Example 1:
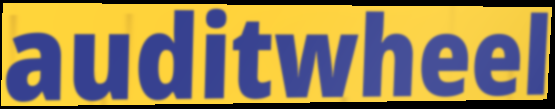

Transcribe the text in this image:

auditwheel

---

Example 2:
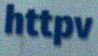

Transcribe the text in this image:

httpv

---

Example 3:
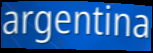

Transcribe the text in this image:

argentina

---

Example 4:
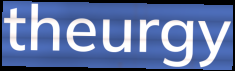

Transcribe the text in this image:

theurgy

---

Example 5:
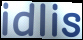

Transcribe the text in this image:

idlis